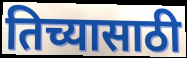
तिच्यासाठी